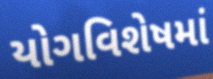
યોગવિશેષમાં